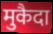
मुकैदा